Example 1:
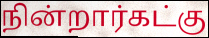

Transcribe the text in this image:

நின்றார்கட்கு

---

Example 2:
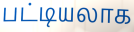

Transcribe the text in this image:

பட்டியலாக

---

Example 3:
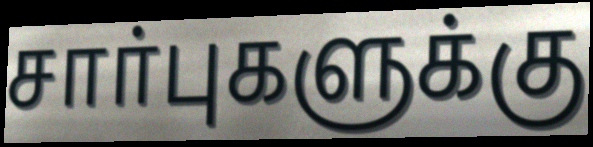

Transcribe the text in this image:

சார்புகளுக்கு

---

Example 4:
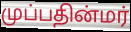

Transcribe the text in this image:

முப்பதின்மர்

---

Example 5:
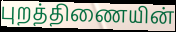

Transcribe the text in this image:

புறத்திணையின்